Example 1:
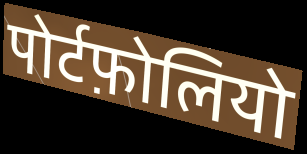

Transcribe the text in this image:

पोर्टफ़ोलियो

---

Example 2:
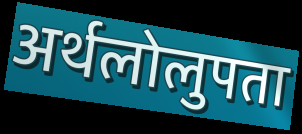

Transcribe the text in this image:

अर्थलोलुपता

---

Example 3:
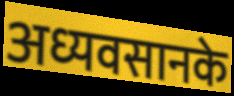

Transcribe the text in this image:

अध्यवसानके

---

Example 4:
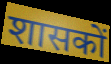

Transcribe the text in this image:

शासकों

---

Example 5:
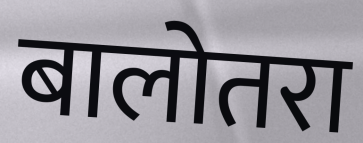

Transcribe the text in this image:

बालोतरा